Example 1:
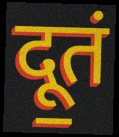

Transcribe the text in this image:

दू॒तं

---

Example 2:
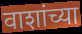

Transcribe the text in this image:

वाशांच्या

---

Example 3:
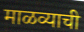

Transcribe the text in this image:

माळव्याची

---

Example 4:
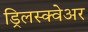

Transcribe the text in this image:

ड्रिलस्क्वेअर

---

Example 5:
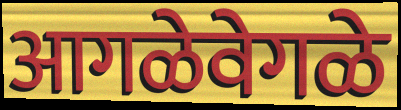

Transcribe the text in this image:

आगळेवेगळे